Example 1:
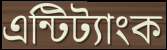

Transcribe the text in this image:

এন্টিট্যাংক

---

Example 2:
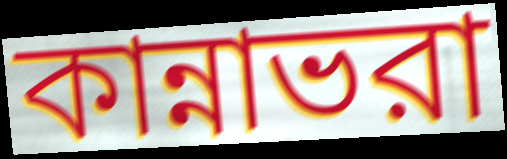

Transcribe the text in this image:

কান্নাভরা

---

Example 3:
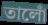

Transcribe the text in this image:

তালোঁ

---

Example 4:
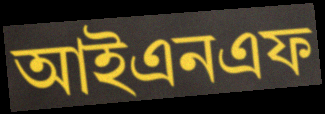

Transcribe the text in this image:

আইএনএফ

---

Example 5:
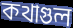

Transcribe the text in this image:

কথাগুল